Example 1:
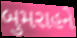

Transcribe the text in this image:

બુમરાહને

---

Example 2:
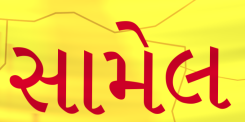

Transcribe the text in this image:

સામેલ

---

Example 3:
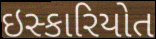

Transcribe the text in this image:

ઇસ્કારિયોત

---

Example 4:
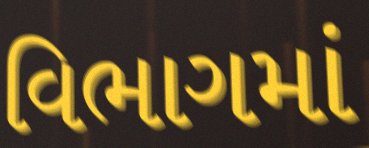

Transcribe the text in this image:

વિભાગમાં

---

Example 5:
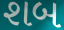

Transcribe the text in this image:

શબ